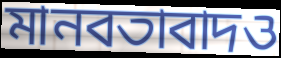
মানবতাবাদও